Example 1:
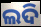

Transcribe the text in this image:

ଲଦି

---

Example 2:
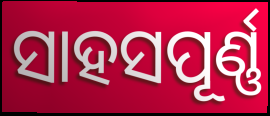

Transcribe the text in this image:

ସାହସପୂର୍ଣ୍ଣ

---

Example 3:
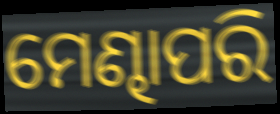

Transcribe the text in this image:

ମେଣ୍ଢାପରି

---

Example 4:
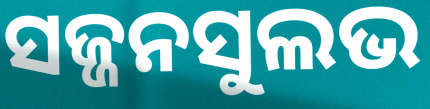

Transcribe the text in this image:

ସଜ୍ଜନସୁଲଭ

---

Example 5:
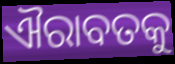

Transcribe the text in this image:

ଐରାବତକୁ